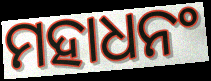
ମହାଧନଂ